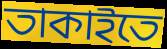
তাকাইতে